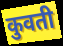
कुवती